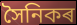
সৈনিকৰ